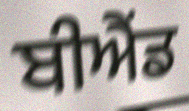
ਬੀਐਂਡ